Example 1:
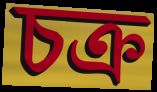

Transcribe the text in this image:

চক্ৰ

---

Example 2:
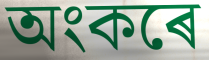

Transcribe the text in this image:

অংকৰে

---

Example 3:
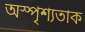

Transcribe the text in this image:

অস্পৃশ্যতাক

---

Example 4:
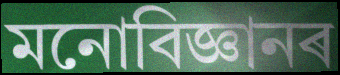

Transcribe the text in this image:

মনোবিজ্ঞানৰ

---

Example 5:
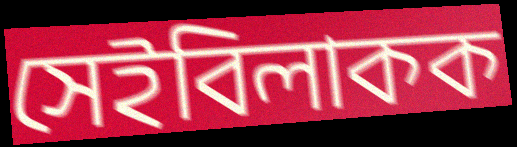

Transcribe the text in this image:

সেইবিলাকক